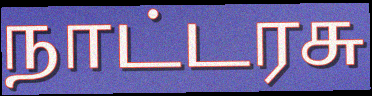
நாட்டரசு